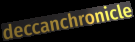
deccanchronicle